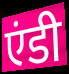
एंडी